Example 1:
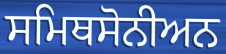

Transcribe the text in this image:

ਸਮਿਥਸੋਨੀਅਨ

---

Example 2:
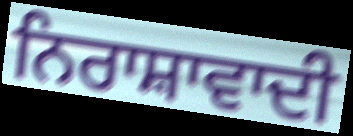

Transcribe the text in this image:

ਨਿਰਾਸ਼ਾਵਾਦੀ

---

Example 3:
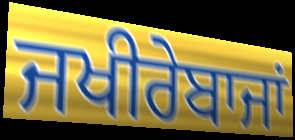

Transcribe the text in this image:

ਜਖੀਰੇਬਾਜਾਂ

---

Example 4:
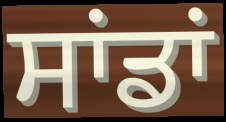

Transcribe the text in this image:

ਸਾਂਡਾਂ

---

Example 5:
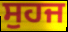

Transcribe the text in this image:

ਸੁਹਜ